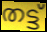
തട്ട്